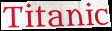
Titanic